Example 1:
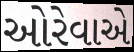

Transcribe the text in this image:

ઓરેવાએ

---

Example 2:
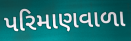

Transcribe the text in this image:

પરિમાણવાળા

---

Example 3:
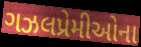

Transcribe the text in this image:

ગઝલપ્રેમીઓના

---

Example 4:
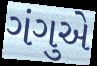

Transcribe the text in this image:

ગંગુએ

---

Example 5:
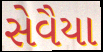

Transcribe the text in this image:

સેવૈયા